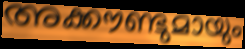
അക്കൗണ്ടുമായും